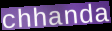
chhanda